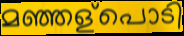
മഞ്ഞള്പൊടി